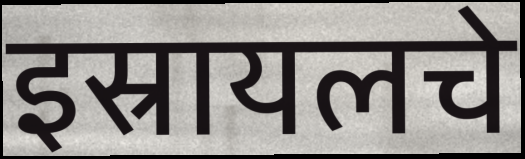
इस्रायलचे